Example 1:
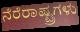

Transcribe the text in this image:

ನೆರೆರಾಷ್ಟ್ರಗಳು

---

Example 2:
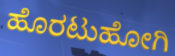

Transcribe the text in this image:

ಹೊರಟುಹೋಗಿ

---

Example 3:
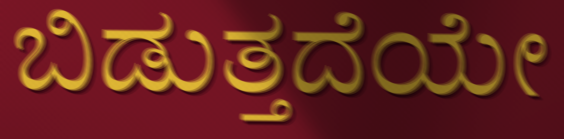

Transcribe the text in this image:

ಬಿಡುತ್ತದೆಯೇ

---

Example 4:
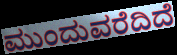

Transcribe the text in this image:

ಮುಂದುವರೆದಿದೆ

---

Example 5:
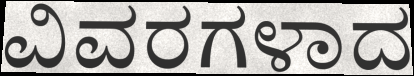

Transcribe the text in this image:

ವಿವರಗಳಾದ